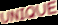
UNIQUE